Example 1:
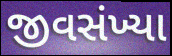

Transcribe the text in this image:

જીવસંખ્યા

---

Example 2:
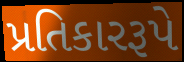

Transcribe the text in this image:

પ્રતિકારરૂપે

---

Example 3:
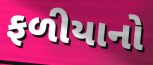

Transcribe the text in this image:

ફળીયાનો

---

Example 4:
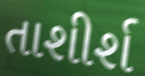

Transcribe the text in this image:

તાશીર્શ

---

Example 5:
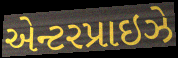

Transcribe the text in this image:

એન્ટરપ્રાઇઝે